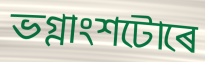
ভগ্নাংশটোৰে